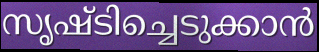
സൃഷ്ടിച്ചെടുക്കാൻ